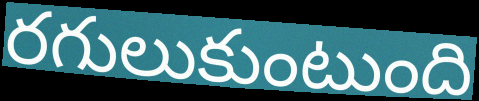
రగులుకుంటుంది